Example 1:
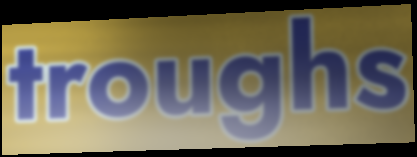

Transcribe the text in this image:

troughs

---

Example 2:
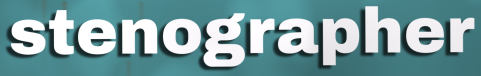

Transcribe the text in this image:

stenographer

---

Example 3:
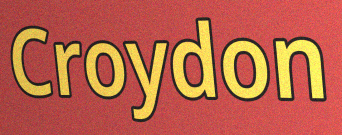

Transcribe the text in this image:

Croydon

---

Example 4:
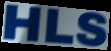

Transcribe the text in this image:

HLS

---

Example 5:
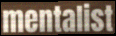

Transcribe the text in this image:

mentalist